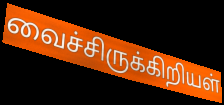
வைச்சிருக்கிறியள்